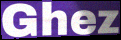
Ghez